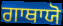
ਗਾਥਾਯੋ